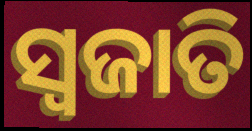
ସ୍ୱଜାତି